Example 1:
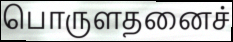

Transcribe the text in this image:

பொருளதனைச்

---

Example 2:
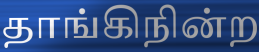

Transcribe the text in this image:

தாங்கிநின்ற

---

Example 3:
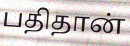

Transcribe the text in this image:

பதிதான்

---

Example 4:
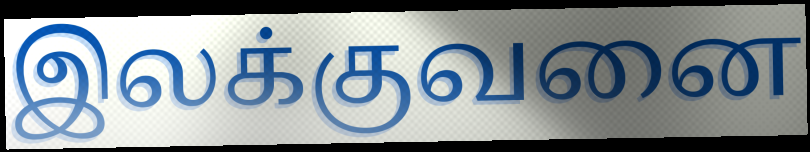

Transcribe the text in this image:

இலக்குவனை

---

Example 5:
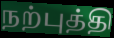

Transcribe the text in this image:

நற்புத்தி